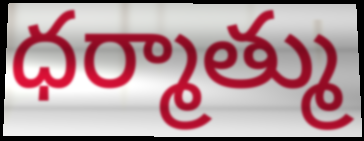
ధర్మాత్ము